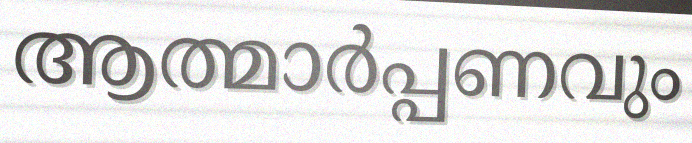
ആത്മാർപ്പണവും